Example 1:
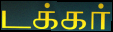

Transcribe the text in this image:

டக்கர்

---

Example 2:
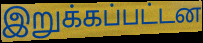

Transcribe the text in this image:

இறுக்கப்பட்டன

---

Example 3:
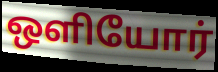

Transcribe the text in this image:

ஒளியோர்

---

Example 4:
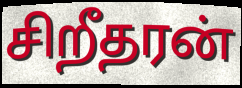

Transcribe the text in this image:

சிறீதரன்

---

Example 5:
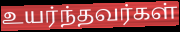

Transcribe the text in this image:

உயர்ந்தவர்கள்